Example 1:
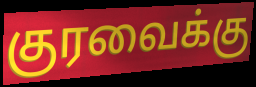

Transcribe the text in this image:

குரவைக்கு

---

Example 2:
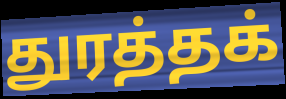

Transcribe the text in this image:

துரத்தக்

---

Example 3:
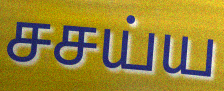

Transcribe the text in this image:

சசய்ய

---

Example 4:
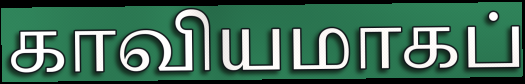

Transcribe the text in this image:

காவியமாகப்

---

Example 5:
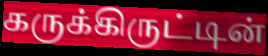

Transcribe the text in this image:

கருக்கிருட்டின்